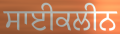
ਸਾਈਕਲੀਨ